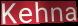
Kehna